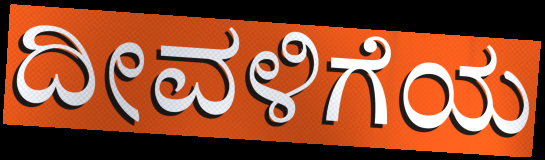
ದೀವಳಿಗೆಯ